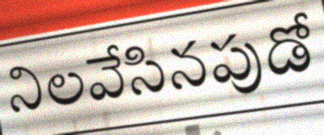
నిలవేసినపుడో